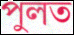
পুলত